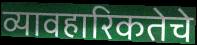
व्यावहारिकतेचे